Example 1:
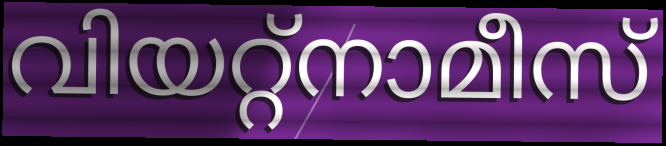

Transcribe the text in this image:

വിയറ്റ്നാമീസ്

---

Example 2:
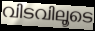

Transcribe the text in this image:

വിടവിലൂടെ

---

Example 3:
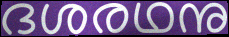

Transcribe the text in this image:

ദശരഥനു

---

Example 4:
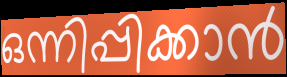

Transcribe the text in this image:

ഒന്നിപ്പിക്കാൻ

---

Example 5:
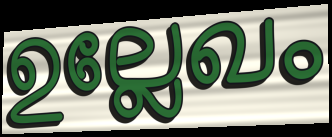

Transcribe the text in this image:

ഉല്ലേഖം